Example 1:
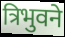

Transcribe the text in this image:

त्रिभुवने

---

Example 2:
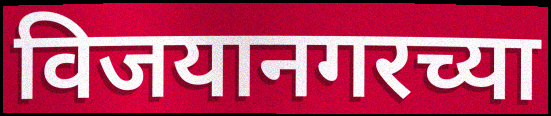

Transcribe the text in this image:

विजयानगरच्या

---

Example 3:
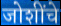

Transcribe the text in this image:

जोशींचे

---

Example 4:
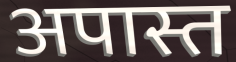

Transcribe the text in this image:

अपास्त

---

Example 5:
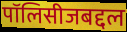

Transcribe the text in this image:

पॉलिसीजबद्दल